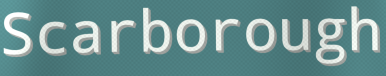
Scarborough